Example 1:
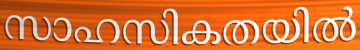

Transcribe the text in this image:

സാഹസികതയിൽ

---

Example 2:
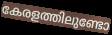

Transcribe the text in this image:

കേരളത്തിലുണ്ടോ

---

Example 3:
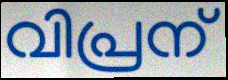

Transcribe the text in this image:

വിപ്രന്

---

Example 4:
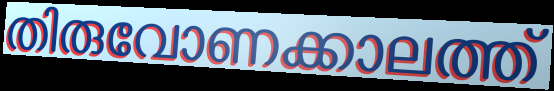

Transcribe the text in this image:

തിരുവോണക്കാലത്ത്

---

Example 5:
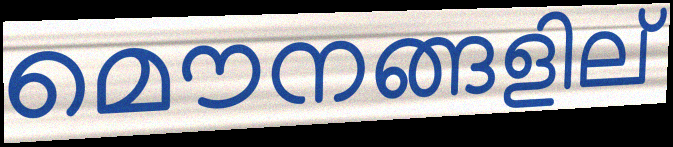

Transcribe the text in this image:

മൌനങ്ങളില്